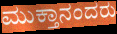
ಮುಕ್ತಾನಂದರು